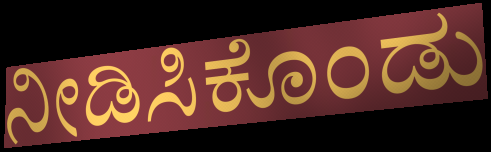
ನೀಡಿಸಿಕೊಂಡು